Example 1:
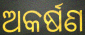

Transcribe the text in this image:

ଅକର୍ଷଣ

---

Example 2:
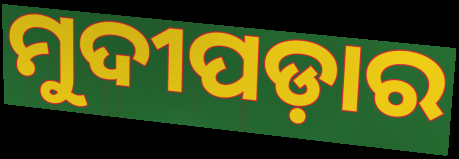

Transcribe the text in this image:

ମୁଦୀପଡ଼ାର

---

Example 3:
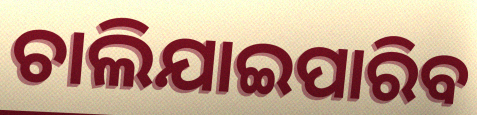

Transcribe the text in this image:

ଚାଲିଯାଇପାରିବ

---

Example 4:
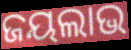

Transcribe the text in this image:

ଜୟଲାଭ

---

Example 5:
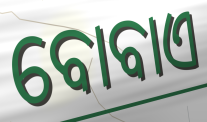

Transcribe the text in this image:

ବୋବାଏ